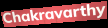
Chakravarthy